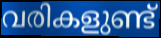
വരികളുണ്ട്